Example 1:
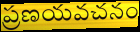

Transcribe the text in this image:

ప్రణయవచనం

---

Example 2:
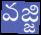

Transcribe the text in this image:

వజ్జి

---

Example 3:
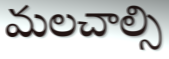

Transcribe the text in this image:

మలచాల్సి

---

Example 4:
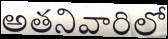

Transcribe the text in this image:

అతనివారిలో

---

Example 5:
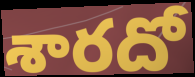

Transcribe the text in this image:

శారదో